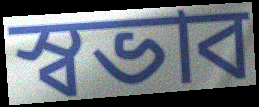
স্বভাব